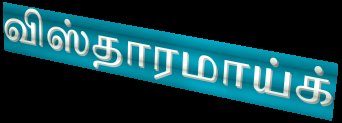
விஸ்தாரமாய்க்